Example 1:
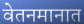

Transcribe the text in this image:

वेतनमानात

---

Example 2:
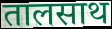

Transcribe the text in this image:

तालसाथ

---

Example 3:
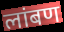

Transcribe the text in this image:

लांबण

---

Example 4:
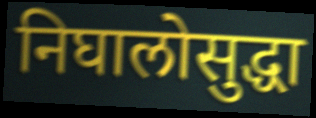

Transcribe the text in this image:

निघालोसुद्धा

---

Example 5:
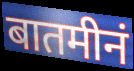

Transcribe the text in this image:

बातमीनं